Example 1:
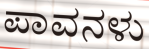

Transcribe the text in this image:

ಪಾವನಳು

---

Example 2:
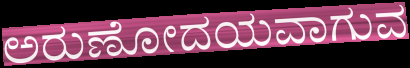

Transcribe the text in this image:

ಅರುಣೋದಯವಾಗುವ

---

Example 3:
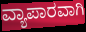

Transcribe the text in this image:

ವ್ಯಾಪಾರವಾಗಿ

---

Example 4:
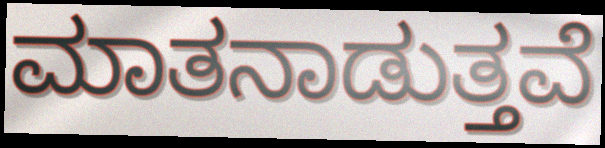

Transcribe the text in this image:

ಮಾತನಾಡುತ್ತವೆ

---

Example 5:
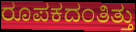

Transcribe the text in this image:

ರೂಪಕದಂತಿತ್ತು